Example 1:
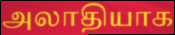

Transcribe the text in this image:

அலாதியாக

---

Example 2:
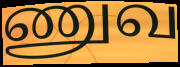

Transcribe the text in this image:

ணுவ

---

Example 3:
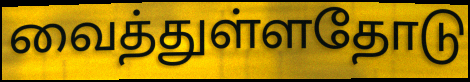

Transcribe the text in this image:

வைத்துள்ளதோடு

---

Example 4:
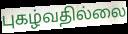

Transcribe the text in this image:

புகழ்வதில்லை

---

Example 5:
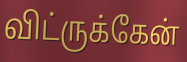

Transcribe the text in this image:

விட்ருக்கேன்